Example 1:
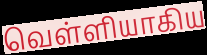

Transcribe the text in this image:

வெள்ளியாகிய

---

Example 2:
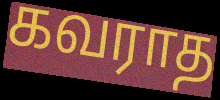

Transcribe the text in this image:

கவராத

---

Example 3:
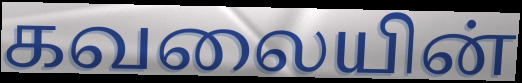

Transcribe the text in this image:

கவலையின்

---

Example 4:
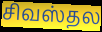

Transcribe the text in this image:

சிவஸ்தல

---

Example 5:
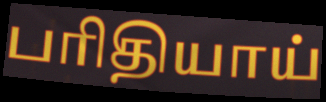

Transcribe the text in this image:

பரிதியாய்